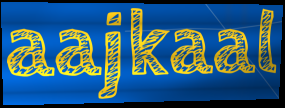
aajkaal